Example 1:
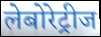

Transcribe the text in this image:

लेबोरेट्रीज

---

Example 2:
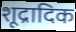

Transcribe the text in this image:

शूद्रादिक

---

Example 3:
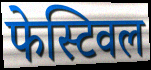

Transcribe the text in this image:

फेस्टिवल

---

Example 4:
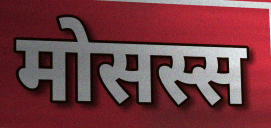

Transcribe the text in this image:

मोसस्स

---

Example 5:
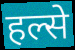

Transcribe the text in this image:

हल्से